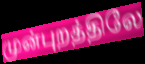
முன்புறத்திலே